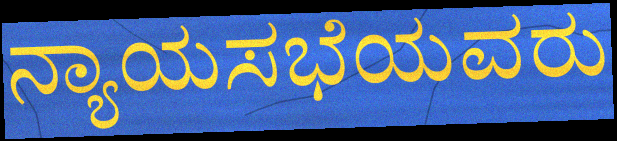
ನ್ಯಾಯಸಭೆಯವರು